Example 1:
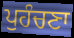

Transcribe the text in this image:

ਪੁਹੰਚਣਾ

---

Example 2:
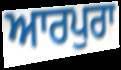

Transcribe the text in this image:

ਆਰਪੁਰਾ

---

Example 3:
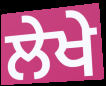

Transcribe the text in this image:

ਲੇਖੇ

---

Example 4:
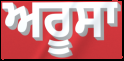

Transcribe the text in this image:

ਅਰੂਸਾ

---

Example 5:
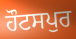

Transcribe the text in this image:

ਹੌਟਸਪੁਰ